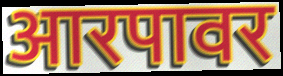
आरपावर